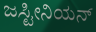
ಜಸ್ಟೀನಿಯನ್